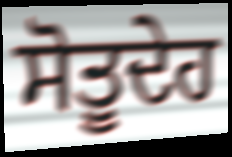
ਸੋਤੂਦੇਹ